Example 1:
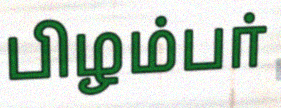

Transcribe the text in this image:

பிழம்பர்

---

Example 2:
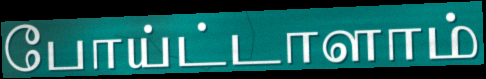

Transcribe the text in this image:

போய்ட்டாளாம்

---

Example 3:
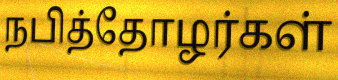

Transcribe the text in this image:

நபித்தோழர்கள்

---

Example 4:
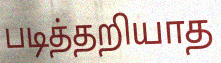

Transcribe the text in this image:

படித்தறியாத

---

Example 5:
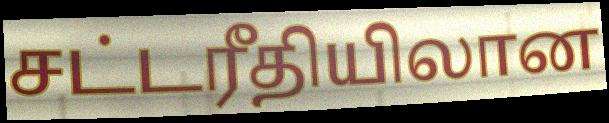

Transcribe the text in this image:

சட்டரீதியிலான